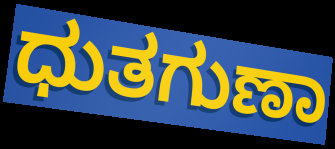
ಧುತಗುಣಾ